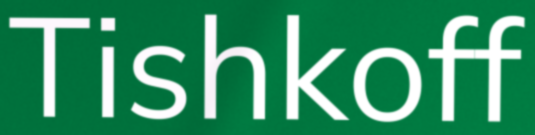
Tishkoff